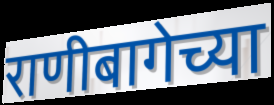
राणीबागेच्या